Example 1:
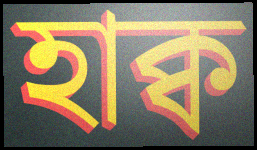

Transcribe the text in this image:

হাক্ব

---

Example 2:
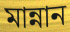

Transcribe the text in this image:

মান্নান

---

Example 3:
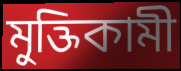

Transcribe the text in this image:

মুক্তিকামী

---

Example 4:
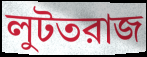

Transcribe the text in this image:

লুটতরাজ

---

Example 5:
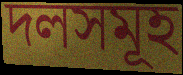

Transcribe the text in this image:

দলসমূহ